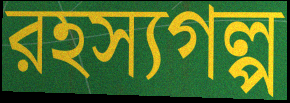
রহস্যগল্প